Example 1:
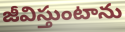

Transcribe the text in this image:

జీవిస్తుంటాను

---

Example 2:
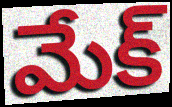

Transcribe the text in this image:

మేక్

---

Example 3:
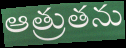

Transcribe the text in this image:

ఆత్రుతను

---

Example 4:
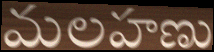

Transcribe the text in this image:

మలహణు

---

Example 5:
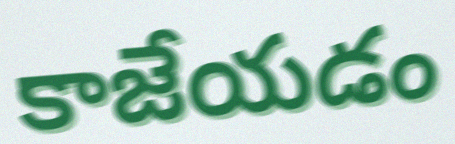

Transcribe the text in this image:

కాజేయడం